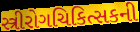
સ્ત્રીરોગચિકિત્સકની